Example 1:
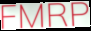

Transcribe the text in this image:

FMRP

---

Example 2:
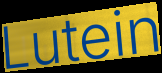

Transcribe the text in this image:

Lutein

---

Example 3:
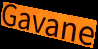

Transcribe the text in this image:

Gavane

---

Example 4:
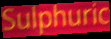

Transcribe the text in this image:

Sulphuric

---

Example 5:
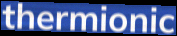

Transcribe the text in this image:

thermionic